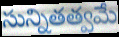
సున్నితత్వమే